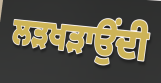
ਲੜਖੜਾਉਂਦੀ